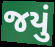
જયું